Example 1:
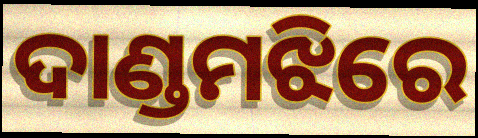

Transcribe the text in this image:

ଦାଣ୍ଡମଝିରେ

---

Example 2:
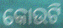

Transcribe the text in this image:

କୋଉଟି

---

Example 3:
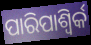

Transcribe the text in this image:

ପାରିପାଶ୍ୱିର୍କ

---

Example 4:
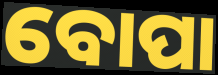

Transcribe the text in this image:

ବୋପା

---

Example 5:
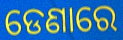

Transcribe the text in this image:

ଡେଣାରେ